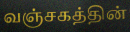
வஞ்சகத்தின்